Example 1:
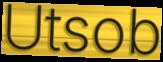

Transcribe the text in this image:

Utsob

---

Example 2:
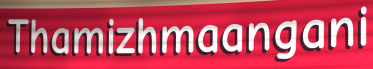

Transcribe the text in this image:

Thamizhmaangani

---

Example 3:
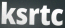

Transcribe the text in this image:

ksrtc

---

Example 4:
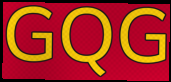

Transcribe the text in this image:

GQG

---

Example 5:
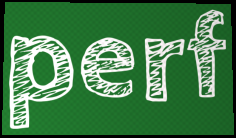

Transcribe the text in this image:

perf